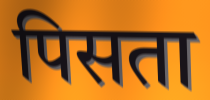
पिसता